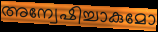
അന്വേഷിച്ചാകുമോ